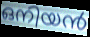
ഒനിയൻ